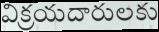
విక్రయదారులకు